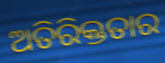
ଅତିରିକ୍ତତାର